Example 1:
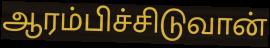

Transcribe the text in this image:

ஆரம்பிச்சிடுவான்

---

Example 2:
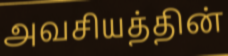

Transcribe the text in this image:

அவசியத்தின்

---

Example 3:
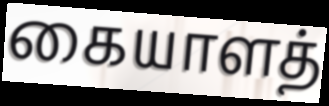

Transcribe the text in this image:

கையாளத்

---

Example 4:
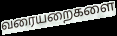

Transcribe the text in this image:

வரையறைகளை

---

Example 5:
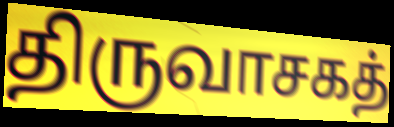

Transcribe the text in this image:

திருவாசகத்